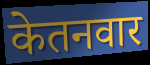
केतनवार